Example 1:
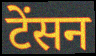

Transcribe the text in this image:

टेंसन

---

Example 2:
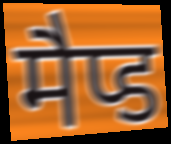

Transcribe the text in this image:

मैप्ड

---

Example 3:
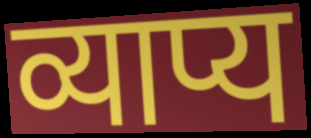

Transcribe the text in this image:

व्याप्य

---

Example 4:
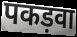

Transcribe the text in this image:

पकड़वा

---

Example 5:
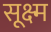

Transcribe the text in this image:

सूक्ष्‍म